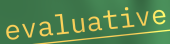
evaluative